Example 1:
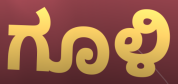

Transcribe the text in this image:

ಗೂಳಿ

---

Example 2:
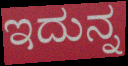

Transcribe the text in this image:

ಇದುನ್ನ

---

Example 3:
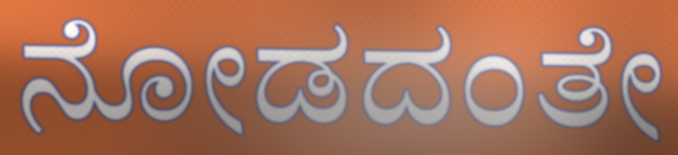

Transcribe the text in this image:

ನೋಡದಂತೇ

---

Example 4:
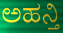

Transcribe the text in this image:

ಅಹನ್ತಿ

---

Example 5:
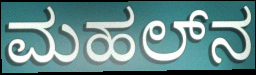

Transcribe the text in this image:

ಮಹಲ್‌ನ